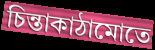
চিন্তাকাঠামোতে